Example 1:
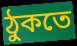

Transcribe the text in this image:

ঠুকতে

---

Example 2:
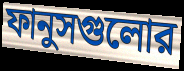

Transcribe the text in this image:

ফানুসগুলোর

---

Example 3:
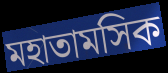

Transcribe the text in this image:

মহাতামসিক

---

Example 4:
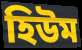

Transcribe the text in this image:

হিউম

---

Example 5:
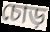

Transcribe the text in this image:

চোড়